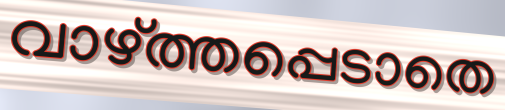
വാഴ്ത്തപ്പെടാതെ